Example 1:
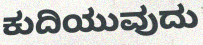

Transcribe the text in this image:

ಕುದಿಯುವುದು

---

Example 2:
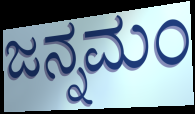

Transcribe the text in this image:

ಜನ್ನಮಂ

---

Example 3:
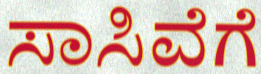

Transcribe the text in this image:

ಸಾಸಿವೆಗೆ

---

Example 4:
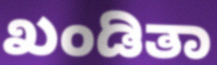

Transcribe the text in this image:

ಖಂಡಿತಾ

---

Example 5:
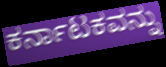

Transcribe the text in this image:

ಕರ್ನಾಟಕವನ್ನು